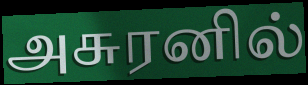
அசுரனில்